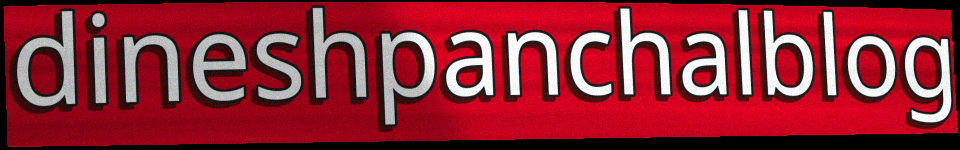
dineshpanchalblog